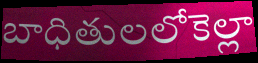
బాధితులలోకెల్లా